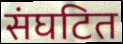
संघटित